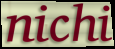
nichi